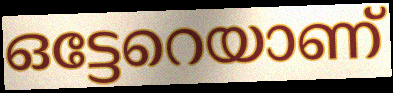
ഒട്ടേറെയാണ്